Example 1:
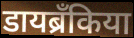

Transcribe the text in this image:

डायब्रँकिया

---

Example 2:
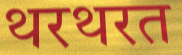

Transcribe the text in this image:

थरथरत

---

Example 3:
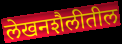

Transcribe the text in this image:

लेखनशैलीतील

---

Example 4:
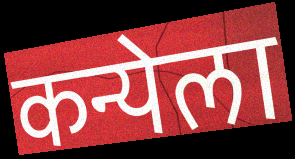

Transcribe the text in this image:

कन्येला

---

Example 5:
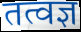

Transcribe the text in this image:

तत्वज्ञ